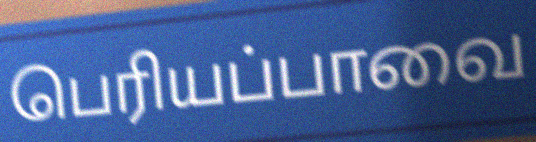
பெரியப்பாவை